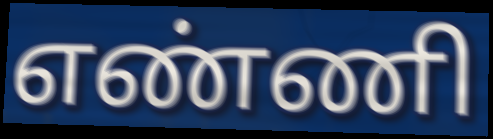
எண்ணி